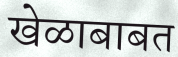
खेळाबाबत